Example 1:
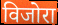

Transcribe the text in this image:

विजोरा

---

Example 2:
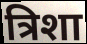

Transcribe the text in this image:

त्रिशा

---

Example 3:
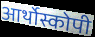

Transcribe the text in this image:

आर्थोस्कोपी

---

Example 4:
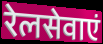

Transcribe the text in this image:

रेलसेवाएं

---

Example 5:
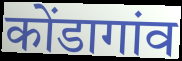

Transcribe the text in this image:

कोंडागांव